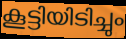
കൂട്ടിയിടിച്ചും